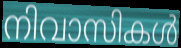
നിവാസികൾ